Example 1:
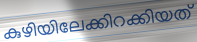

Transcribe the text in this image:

കുഴിയിലേക്കിറക്കിയത്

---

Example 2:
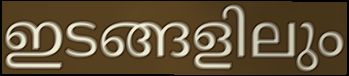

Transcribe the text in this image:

ഇടങ്ങളിലും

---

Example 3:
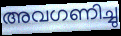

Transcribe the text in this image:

അവഗണിച്ചു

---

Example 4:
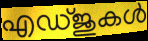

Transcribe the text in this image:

എഡ്ജുകൾ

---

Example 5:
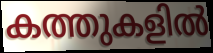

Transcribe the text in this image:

കത്തുകളിൽ